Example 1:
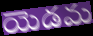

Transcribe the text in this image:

యెడమ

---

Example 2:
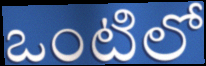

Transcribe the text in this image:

ఒంటిలో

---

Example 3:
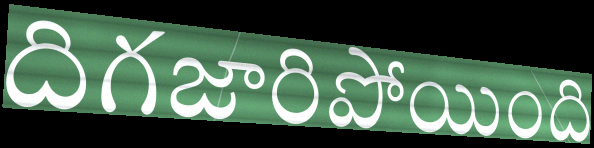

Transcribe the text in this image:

దిగజారిపోయింది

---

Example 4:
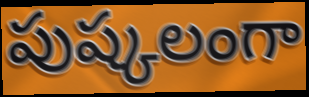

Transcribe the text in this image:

పుష్కలంగా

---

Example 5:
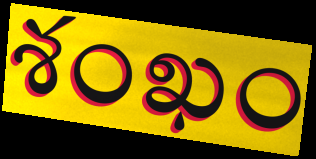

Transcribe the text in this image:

శంఖం